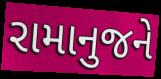
રામાનુજને